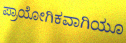
ಪ್ರಾಯೋಗಿಕವಾಗಿಯೂ